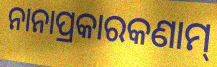
ନାନାପ୍ରକାରକଣାମ୍